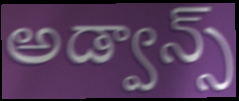
అడ్వాన్స్